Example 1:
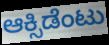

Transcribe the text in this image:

ಆಕ್ಸಿಡೆಂಟು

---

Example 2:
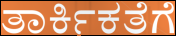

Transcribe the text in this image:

ತಾರ್ಕಿಕತೆಗೆ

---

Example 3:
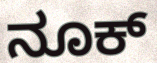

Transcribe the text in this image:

ನೂಕ್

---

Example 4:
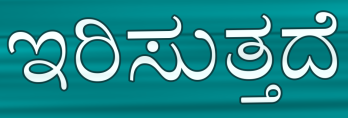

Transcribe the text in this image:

ಇರಿಸುತ್ತದೆ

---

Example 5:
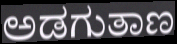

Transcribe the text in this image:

ಅಡಗುತಾಣ